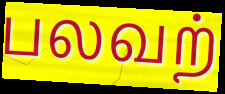
பலவற்